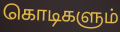
கொடிகளும்